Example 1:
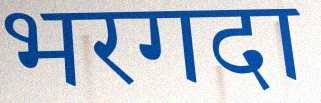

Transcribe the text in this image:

भरगदा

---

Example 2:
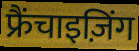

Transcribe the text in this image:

फ्रैंचाइज़िंग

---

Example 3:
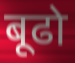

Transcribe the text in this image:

बूढो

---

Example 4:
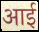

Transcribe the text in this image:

आई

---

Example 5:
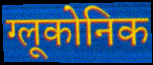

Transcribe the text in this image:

ग्लूकोनिक